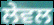
ਲੇਵਲ